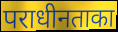
पराधीनताका